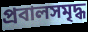
প্রবালসমৃদ্ধ